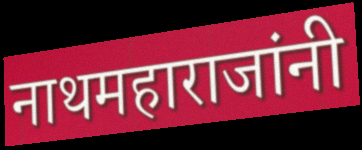
नाथमहाराजांनी